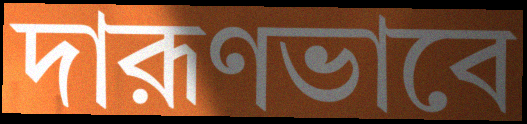
দারূণভাবে